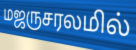
மஜருசரலமில்